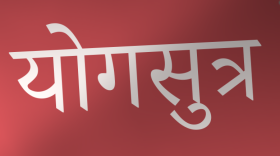
योगसुत्र